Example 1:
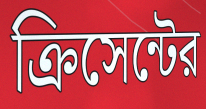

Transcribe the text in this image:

ক্রিসেন্টের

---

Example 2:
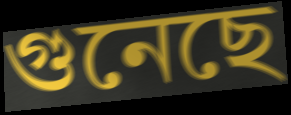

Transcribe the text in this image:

গুনেছে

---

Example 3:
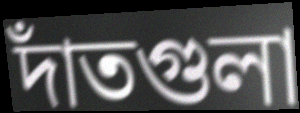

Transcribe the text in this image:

দাঁতগুলা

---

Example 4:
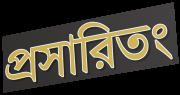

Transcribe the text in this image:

প্রসারিতং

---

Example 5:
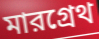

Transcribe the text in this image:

মারগ্রেথ